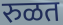
रुळत